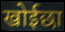
खोईछा